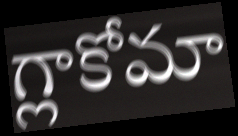
గ్లాకోమా